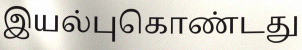
இயல்புகொண்டது